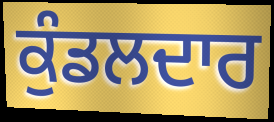
ਕੁੰਡਲਦਾਰ